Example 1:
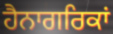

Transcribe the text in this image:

ਹੈਨਾਗਰਿਕਾਂ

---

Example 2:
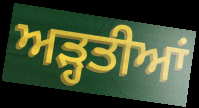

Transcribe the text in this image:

ਅੜ੍ਹਤੀਆਂ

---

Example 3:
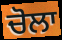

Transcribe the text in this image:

ਚੋਲਾ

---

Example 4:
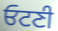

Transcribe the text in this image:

ਓਟਣੀ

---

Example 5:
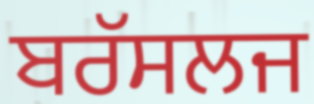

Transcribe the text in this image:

ਬਰੱਸਲਜ